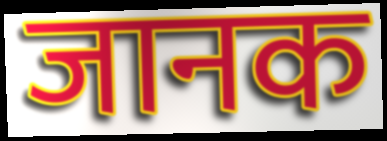
जानक